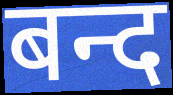
बन्द